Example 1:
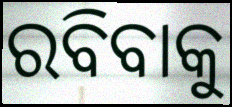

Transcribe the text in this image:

ରବିବାକୁ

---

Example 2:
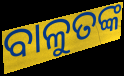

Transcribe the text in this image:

ବାଳୁତଙ୍କ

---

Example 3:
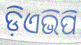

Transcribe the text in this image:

ଡ଼ିଏଭିପି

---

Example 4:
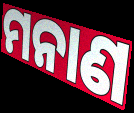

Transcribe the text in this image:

ମନାଣ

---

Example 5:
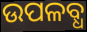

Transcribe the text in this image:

ଉପଳବ୍ଧ